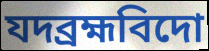
যদব্রহ্মবিদো